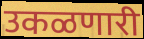
उकळणारी